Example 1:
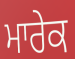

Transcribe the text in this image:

ਮਾਰੇਕ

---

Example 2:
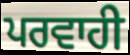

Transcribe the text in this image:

ਪਰਵਾਹੀ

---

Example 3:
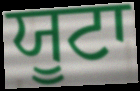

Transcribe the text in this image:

ਯੂਟਾ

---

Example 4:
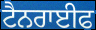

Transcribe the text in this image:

ਟੈਨਰਾਈਫ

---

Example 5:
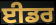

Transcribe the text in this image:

ਈਡਰ